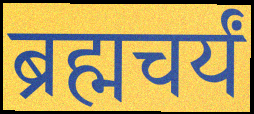
ब्रह्मचर्यं